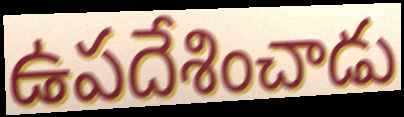
ఉపదేశించాడు